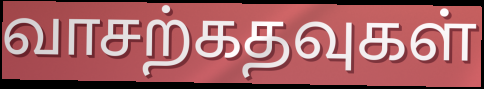
வாசற்கதவுகள்